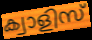
ക്വാളിസ്